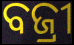
ବଜ୍ରୀ